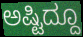
ಅಷ್ಟಿದ್ದೂ